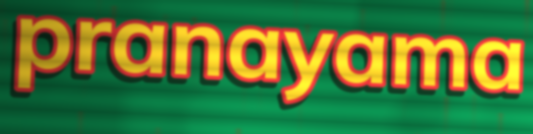
pranayama